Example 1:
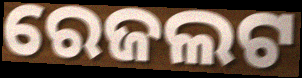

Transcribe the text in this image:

ରେଜଲଟ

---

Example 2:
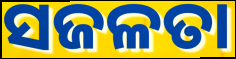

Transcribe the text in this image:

ସଜଳତା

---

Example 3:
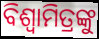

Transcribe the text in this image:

ବିଶ୍ଵାମିତ୍ରଙ୍କୁ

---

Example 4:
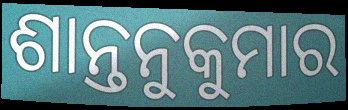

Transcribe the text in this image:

ଶାନ୍ତନୁକୁମାର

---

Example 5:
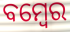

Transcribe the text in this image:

ବମ୍ବେର